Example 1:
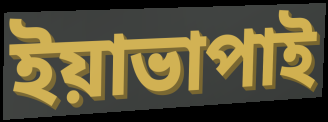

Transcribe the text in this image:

ইয়াভাপাই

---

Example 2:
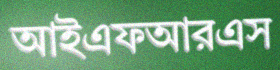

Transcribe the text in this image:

আইএফআরএস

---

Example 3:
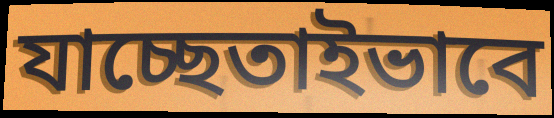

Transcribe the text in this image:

যাচ্ছেতাইভাবে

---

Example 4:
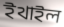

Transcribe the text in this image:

ইথাইল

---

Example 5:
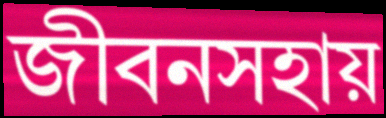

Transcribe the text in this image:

জীবনসহায়